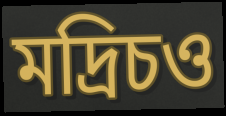
মদ্রিচও